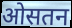
ओसतन